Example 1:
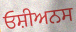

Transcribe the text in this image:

ਓਸ਼ੀਅਨਸ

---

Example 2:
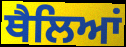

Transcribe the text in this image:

ਥੈਲਿਆਂ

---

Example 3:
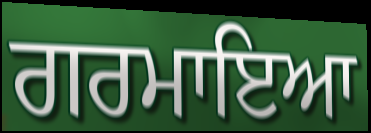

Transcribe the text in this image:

ਗਰਮਾਇਆ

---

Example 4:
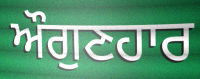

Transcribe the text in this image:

ਔਗੁਣਹਾਰ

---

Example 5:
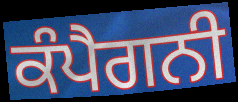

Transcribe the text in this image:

ਕੰਪੈਗਨੀ